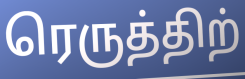
ரெருத்திற்